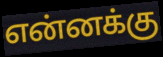
என்னக்கு